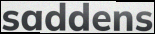
saddens